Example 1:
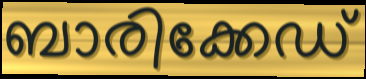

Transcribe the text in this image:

ബാരിക്കേഡ്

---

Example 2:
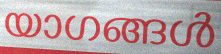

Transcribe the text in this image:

യാഗങ്ങൾ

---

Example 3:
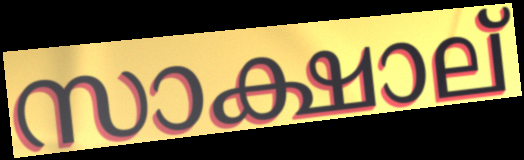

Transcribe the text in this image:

സാക്ഷാല്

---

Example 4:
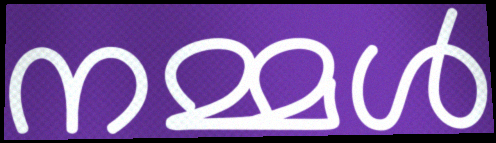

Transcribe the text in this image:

നമ്മൾ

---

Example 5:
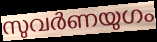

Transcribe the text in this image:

സുവർണയുഗം